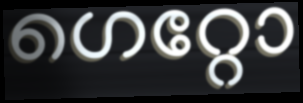
ഗെറ്റോ